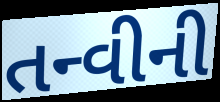
તન્વીની